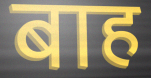
बाह